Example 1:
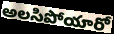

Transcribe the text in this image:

అలసిపోయారో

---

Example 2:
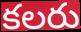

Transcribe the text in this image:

కలరు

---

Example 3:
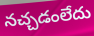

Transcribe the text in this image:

నచ్చడంలేదు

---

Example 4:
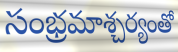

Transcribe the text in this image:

సంభ్రమాశ్చర్యంతో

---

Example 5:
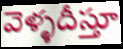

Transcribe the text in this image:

వెళ్ళదీస్తూ